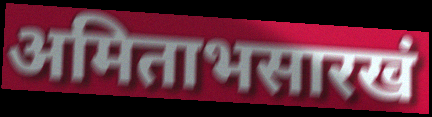
अमिताभसारखं